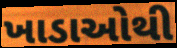
ખાડાઓથી